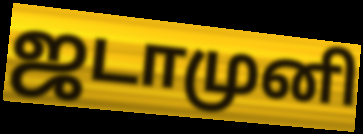
ஜடாமுனி